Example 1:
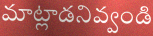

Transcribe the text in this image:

మాట్లాడనివ్వండి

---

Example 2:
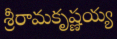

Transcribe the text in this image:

శ్రీరామకృష్ణయ్య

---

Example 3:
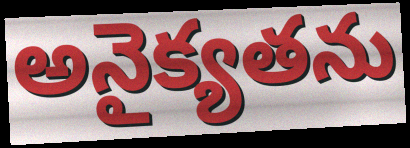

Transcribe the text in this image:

అనైక్యతను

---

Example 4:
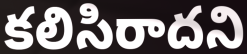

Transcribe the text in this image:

కలిసిరాదని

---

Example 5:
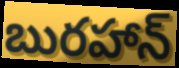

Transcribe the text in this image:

బురహాన్